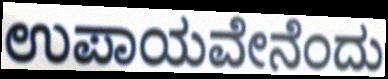
ಉಪಾಯವೇನೆಂದು